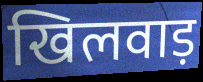
खिलवाड़